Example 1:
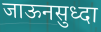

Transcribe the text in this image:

जाऊनसुध्दा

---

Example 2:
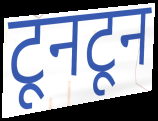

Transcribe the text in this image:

टूनटून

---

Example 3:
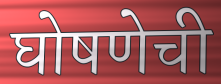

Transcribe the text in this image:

घोषणेची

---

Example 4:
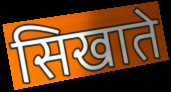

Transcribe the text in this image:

सिखाते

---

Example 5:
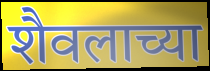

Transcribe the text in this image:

शैवलाच्या